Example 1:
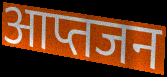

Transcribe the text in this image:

आप्तजन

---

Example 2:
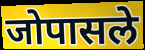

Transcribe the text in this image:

जोपासले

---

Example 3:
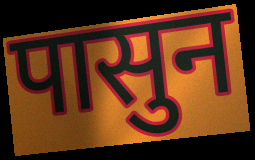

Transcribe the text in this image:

पासुन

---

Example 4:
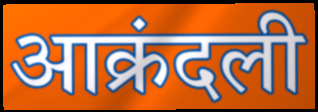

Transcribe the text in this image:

आक्रंदली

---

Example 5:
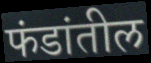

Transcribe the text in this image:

फंडांतील